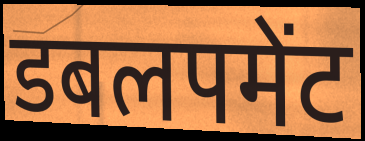
डबलपमेंट